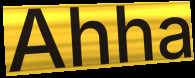
Ahha